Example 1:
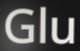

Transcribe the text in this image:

Glu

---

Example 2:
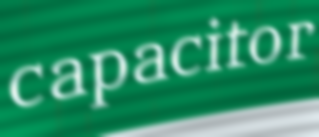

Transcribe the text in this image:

capacitor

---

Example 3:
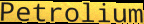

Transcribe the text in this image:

Petrolium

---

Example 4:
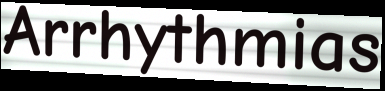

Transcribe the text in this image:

Arrhythmias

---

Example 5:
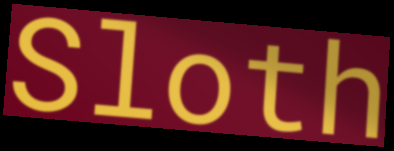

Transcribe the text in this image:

Sloth